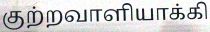
குற்றவாளியாக்கி